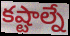
కష్టాల్నే